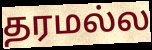
தரமல்ல